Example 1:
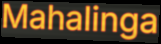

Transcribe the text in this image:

Mahalinga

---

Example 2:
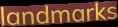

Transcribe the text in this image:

landmarks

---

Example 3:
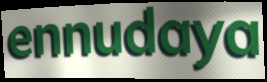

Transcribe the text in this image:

ennudaya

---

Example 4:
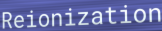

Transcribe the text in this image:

Reionization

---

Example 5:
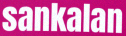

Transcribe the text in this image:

sankalan